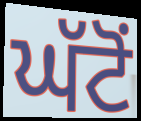
ਘੱਟੋਂ